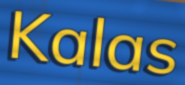
Kalas